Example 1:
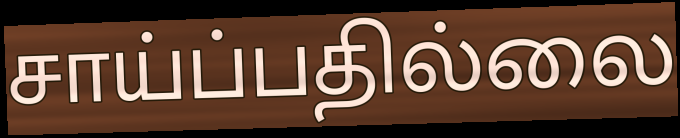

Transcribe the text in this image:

சாய்ப்பதில்லை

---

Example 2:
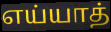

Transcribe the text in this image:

எய்யாத்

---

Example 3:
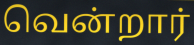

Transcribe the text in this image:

வென்றார்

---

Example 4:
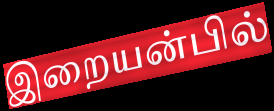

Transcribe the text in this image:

இறையன்பில்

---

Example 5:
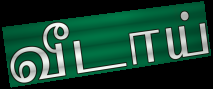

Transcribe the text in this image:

வீடாய்